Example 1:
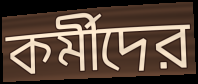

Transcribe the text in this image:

কর্মীদের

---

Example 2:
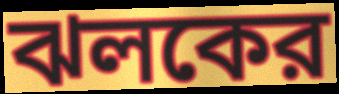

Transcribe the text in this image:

ঝলকের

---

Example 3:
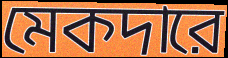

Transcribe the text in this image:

মেকদারে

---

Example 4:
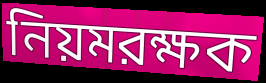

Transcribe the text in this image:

নিয়মরক্ষক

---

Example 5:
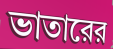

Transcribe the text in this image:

ভাতারের